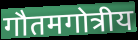
गौतमगोत्रीय